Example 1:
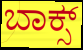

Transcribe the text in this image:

ಬಾಕ್ಸ್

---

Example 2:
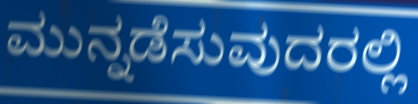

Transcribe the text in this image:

ಮುನ್ನಡೆಸುವುದರಲ್ಲಿ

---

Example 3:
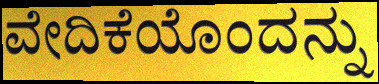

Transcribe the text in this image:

ವೇದಿಕೆಯೊಂದನ್ನು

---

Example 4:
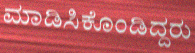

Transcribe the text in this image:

ಮಾಡಿಸಿಕೊಂಡಿದ್ದರು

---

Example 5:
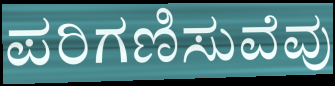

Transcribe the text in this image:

ಪರಿಗಣಿಸುವೆವು